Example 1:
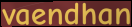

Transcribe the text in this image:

vaendhan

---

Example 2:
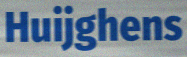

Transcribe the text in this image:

Huijghens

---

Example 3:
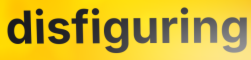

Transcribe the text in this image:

disfiguring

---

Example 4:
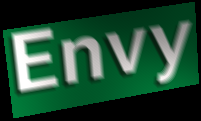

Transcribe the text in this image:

Envy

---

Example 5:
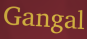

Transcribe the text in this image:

Gangal